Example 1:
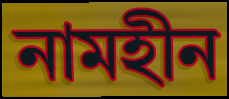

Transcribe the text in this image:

নামহীন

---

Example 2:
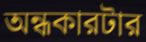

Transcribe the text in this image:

অন্ধকারটার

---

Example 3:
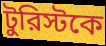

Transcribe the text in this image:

টুরিস্টকে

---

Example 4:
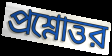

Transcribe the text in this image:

প্রশ্নোত্তর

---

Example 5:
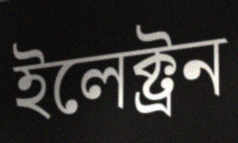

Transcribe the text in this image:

ইলেক্ট্রন